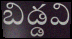
బిడ్డవి